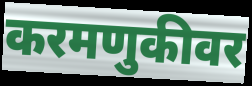
करमणुकीवर